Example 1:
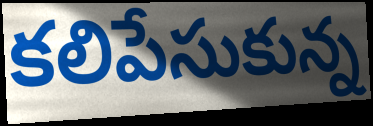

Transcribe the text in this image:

కలిపేసుకున్న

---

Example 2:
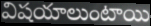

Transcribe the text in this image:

విషయాలుంటాయి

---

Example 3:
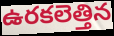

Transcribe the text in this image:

ఉరకలెత్తిన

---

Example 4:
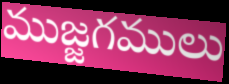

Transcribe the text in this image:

ముజ్జగములు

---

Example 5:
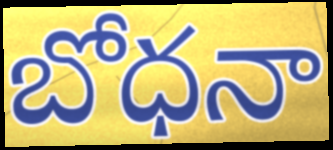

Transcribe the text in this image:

బోధనా